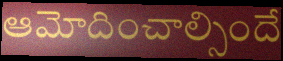
ఆమోదించాల్సిందే